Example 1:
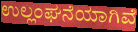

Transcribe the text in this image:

ಉಲ್ಲಂಘನೆಯಾಗಿವೆ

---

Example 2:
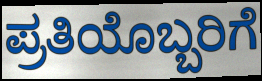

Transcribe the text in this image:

ಪ್ರತಿಯೊಬ್ಬರಿಗೆ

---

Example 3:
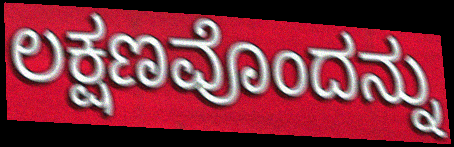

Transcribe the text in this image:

ಲಕ್ಷಣವೊಂದನ್ನು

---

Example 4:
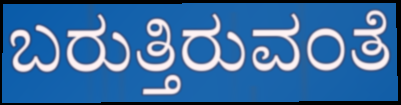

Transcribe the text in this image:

ಬರುತ್ತಿರುವಂತೆ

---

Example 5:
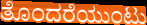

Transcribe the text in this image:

ತೊಂದರೆಯುಂಟು